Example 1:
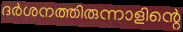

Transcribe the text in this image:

ദർശനത്തിരുന്നാളിന്റെ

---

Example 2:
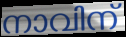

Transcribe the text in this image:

നാവിന്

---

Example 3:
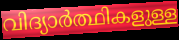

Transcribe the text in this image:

വിദ്യാർത്ഥികളുള്ള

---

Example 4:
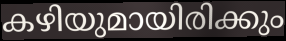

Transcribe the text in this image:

കഴിയുമായിരിക്കും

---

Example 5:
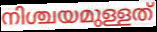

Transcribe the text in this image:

നിശ്ചയമുള്ളത്